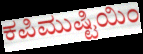
ಕಪಿಮುಷ್ಟಿಯಿಂ